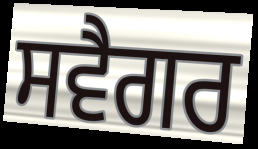
ਸਵੈਗਰ